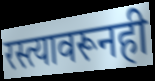
रस्त्यावरूनही